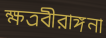
ক্ষত্রবীরাঙ্গনা